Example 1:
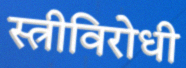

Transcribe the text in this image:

स्त्रीविरोधी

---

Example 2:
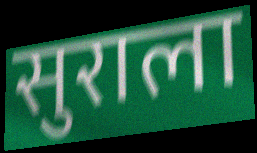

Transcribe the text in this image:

सुराला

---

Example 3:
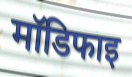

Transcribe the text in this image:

मॉडिफाइ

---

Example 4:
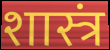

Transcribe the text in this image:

शास्त्रं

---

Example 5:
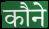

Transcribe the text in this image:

कौने